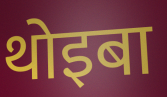
थोइबा